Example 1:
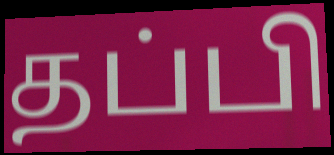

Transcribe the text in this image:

தப்பி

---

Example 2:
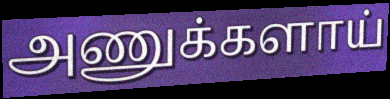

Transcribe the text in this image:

அணுக்களாய்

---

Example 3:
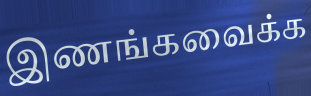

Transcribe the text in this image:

இணங்கவைக்க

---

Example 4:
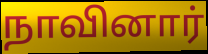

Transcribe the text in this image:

நாவினார்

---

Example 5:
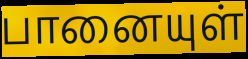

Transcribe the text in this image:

பானையுள்